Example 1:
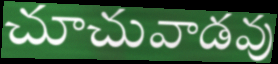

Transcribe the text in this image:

చూచువాడవు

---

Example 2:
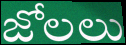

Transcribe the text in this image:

జోలలు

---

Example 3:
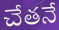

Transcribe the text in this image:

చేతనే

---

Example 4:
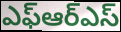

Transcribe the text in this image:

ఎఫ్ఆర్ఎస్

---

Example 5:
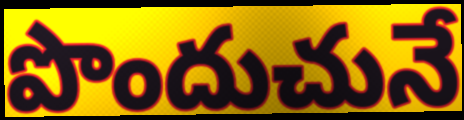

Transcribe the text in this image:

పొందుచునే